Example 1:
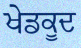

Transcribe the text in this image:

ਖੇਡਕੂਦ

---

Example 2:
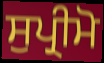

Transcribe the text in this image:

ਸੁਪ੍ਰੀਮੋ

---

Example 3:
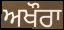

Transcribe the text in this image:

ਅਖੌਰਾ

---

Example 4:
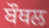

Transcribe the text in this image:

ਬੌਥਲ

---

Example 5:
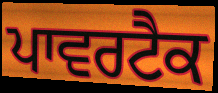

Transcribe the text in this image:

ਪਾਵਰਟੈਕ